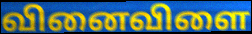
வினைவிளை